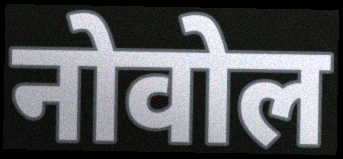
नोवोल